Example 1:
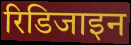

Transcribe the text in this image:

रिडिजाइन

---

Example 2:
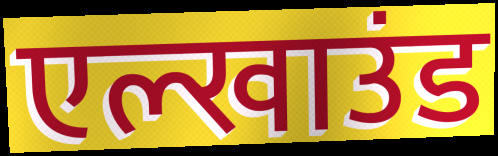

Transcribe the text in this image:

एल्खाउंड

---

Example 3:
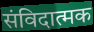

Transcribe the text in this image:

संविदात्मक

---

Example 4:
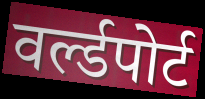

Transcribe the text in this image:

वर्ल्डपोर्ट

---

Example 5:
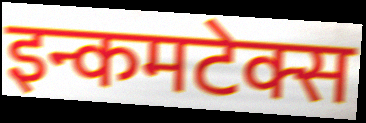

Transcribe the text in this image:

इन्कमटेक्स